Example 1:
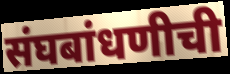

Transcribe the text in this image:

संघबांधणीची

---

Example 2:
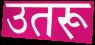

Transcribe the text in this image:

उतरू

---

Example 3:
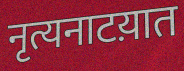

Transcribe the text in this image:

नृत्यनाटय़ात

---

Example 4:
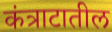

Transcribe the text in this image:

कंत्राटातील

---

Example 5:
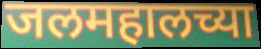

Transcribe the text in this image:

जलमहालच्या